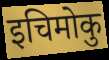
इचिमोकु